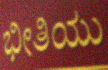
ಭೀತಿಯು